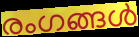
രംഗങ്ങൾ